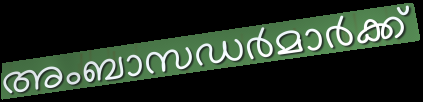
അംബാസഡർമാർക്ക്